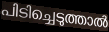
പിടിച്ചെടുത്താൽ